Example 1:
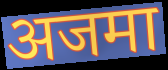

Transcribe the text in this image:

अजमा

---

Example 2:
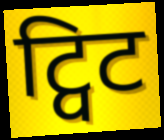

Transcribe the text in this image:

ट्विट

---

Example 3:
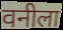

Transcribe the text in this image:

वनीला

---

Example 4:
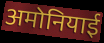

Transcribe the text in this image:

अमोनियाई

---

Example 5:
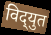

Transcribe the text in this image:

विद्‌युत